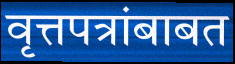
वृत्तपत्रांबाबत